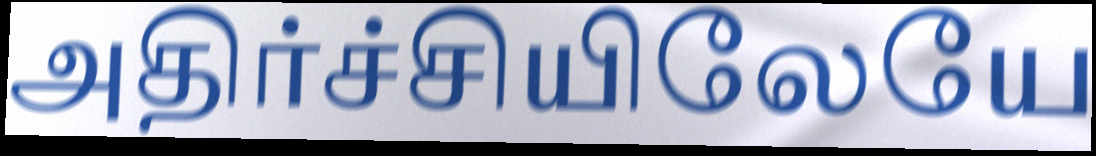
அதிர்ச்சியிலேயே